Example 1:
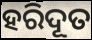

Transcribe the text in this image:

ହରିଦୂତ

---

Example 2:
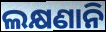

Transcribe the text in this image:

ଲକ୍ଷଣାନି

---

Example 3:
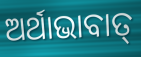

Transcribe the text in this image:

ଅର୍ଥାଭାବାତ୍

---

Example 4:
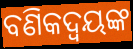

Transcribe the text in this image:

ବଣିକଦ୍ଵୟଙ୍କ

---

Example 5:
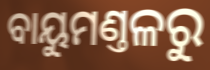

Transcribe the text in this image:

ବାୟୁମଣ୍ତଳରୁ